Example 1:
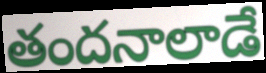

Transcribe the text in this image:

తందనాలాడే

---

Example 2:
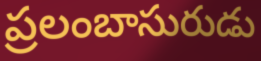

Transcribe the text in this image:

ప్రలంబాసురుడు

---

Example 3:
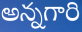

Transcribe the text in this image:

అన్నగారి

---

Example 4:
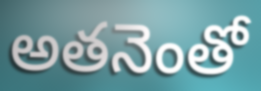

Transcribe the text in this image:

అతనెంతో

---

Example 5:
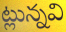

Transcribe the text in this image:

ట్లున్నవి